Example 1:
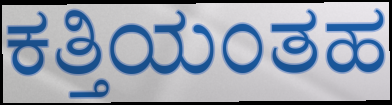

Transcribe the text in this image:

ಕತ್ತಿಯಂತಹ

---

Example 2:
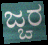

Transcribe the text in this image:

ಜ್ಚರ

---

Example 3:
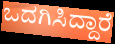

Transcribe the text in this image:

ಒದಗಿಸಿದ್ದಾರೆ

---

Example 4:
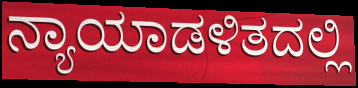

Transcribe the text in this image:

ನ್ಯಾಯಾಡಳಿತದಲ್ಲಿ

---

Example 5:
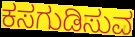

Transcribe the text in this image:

ಕಸಗುಡಿಸುವ